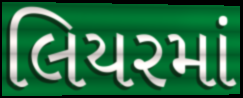
લિયરમાં